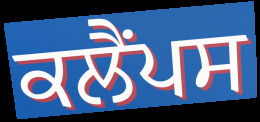
ਕਲੈਂਪਸ